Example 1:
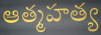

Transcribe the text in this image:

ఆత్మహత్య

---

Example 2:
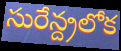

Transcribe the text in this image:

సురేన్ద్రలోక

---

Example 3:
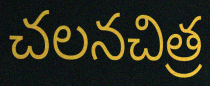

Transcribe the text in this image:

చలనచిత్ర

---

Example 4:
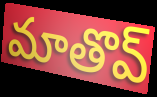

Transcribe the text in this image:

మాతొవ్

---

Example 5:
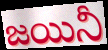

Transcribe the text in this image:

జయినీ